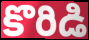
కొరిడి